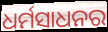
ଧର୍ମସାଧନର